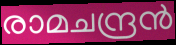
രാമചന്ദ്രൻ